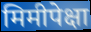
मिमीपेक्षा